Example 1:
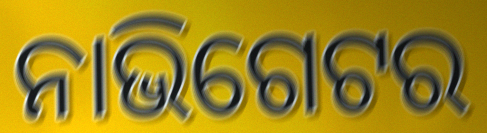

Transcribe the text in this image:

ନାଭିଗେଟର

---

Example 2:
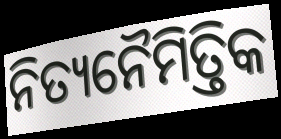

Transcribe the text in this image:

ନିତ୍ୟନୈମିତ୍ତିକ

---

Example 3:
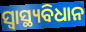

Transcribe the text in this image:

ସ୍ୱାସ୍ଥ୍ୟବିଧାନ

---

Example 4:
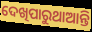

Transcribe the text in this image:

ଦେଖିପାରୁଥାଆନ୍ତି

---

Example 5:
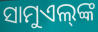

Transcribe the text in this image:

ସାମୁଏଲ୍‌ଙ୍କ